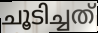
ചൂടിച്ചത്